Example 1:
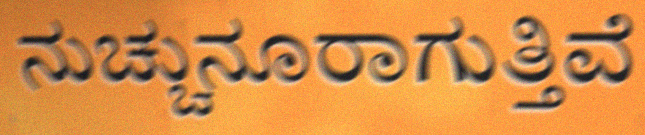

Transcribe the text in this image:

ನುಚ್ಚುನೂರಾಗುತ್ತಿವೆ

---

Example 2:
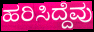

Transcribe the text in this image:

ಹರಿಸಿದ್ದೆವು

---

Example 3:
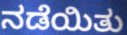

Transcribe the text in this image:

ನಡೆಯಿತು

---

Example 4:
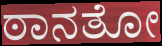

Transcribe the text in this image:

ಠಾನತೋ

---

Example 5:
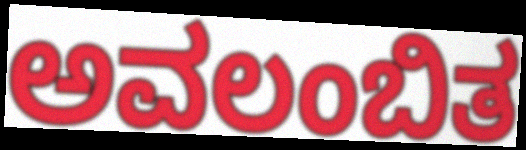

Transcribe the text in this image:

ಅವಲಂಬಿತ